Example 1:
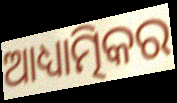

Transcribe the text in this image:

ଆଧ୍ୟାତ୍ମିକର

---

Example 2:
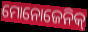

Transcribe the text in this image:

ମୋନୋଜେନିକ୍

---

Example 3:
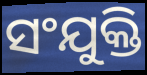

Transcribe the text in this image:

ସଂଯୁକ୍ତି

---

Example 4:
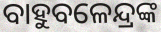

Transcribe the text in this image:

ବାହୁବଳେନ୍ଦ୍ରଙ୍କ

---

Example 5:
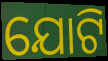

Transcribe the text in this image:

ଯୋଟି